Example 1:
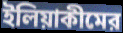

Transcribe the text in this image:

ইলিয়াকীমের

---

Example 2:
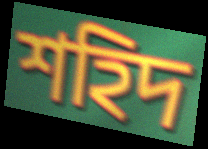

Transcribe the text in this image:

শহিদ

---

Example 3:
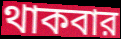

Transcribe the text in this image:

থাকবার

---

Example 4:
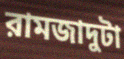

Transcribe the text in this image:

রামজাদুটা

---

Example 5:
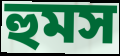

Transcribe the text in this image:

হুমস